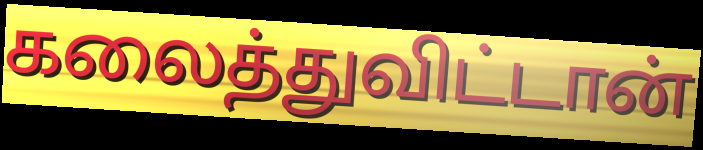
கலைத்துவிட்டான்